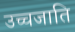
उच्चजाति